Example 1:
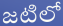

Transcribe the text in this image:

జటిలో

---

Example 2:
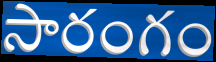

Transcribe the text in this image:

సారంగం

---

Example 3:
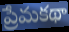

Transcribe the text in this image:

ప్రేమకథా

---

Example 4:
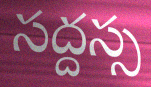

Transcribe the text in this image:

సద్దస్స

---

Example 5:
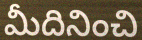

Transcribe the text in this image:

మీదినించి